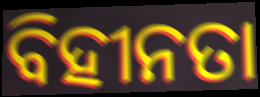
ବିହୀନତା